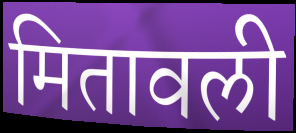
मितावली